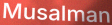
Musalman